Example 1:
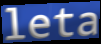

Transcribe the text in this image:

leta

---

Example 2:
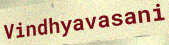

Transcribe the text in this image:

Vindhyavasani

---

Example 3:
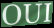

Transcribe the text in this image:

OUI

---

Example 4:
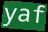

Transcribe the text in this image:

yaf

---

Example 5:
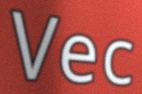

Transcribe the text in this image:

Vec